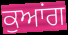
ਕੁਆਂਗ